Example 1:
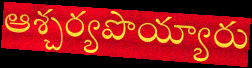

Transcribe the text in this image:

ఆశ్చర్యపొయ్యారు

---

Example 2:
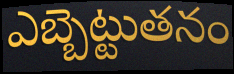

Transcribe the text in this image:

ఎబ్బెట్టుతనం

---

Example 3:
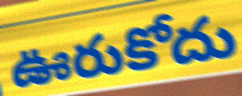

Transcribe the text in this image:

ఊరుకోదు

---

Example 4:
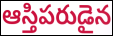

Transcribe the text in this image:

ఆస్తిపరుడైన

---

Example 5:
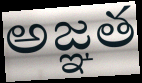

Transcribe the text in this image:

అజ్ఞత